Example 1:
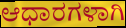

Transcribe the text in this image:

ಆಧಾರಗಳಾಗಿ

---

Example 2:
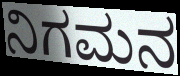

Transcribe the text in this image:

ನಿಗಮನ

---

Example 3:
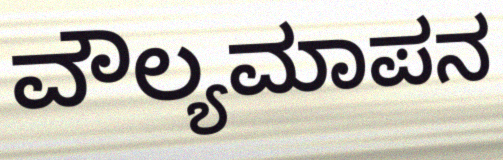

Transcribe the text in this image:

ವೌಲ್ಯಮಾಪನ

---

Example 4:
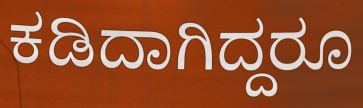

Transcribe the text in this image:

ಕಡಿದಾಗಿದ್ದರೂ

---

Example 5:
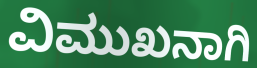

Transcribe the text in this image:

ವಿಮುಖನಾಗಿ